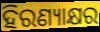
ହିରଣ୍ୟାକ୍ଷର